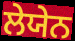
ਲੇਯੇਨ